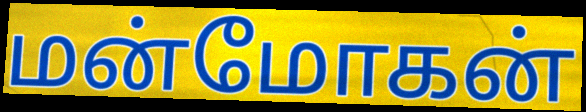
மன்மோகன்